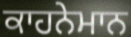
ਕਾਹਨੇਮਾਨ